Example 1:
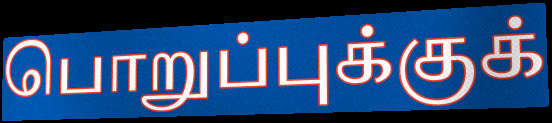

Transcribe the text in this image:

பொறுப்புக்குக்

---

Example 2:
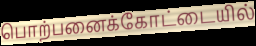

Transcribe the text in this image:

பொற்பனைக்கோட்டையில்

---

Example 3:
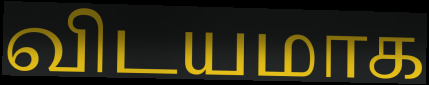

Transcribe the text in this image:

விடயமாக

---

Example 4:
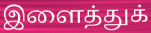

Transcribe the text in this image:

இளைத்துக்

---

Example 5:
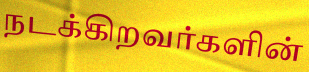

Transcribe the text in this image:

நடக்கிறவர்களின்